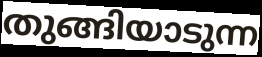
തുങ്ങിയാടുന്ന